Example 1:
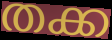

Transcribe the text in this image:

തക്ക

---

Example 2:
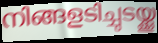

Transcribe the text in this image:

നിങ്ങളടിച്ചുടയ്ക്കൂ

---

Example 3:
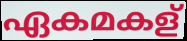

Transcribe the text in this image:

ഏകമകള്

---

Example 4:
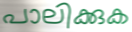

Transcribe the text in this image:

പാലിക്കുക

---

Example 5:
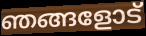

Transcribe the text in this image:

ഞങ്ങളോട്